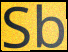
Sb